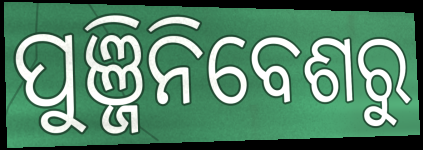
ପୁଞ୍ଜିନିବେଶରୁ